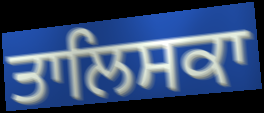
ਤਾਲਿਸਕਾ